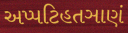
અપ્પટિહતઞાણં